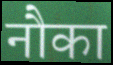
नौका